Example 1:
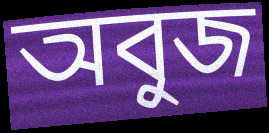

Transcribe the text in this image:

অবুজ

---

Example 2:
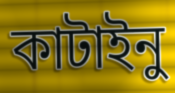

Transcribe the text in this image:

কাটাইনু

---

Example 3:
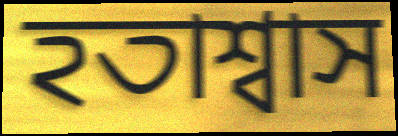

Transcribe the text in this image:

হতাশ্বাস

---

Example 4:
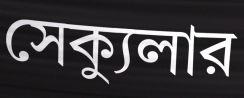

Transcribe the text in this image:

সেক্যুলার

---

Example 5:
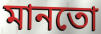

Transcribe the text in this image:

মানতো